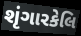
શૃંગારકેલિ